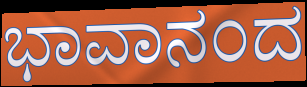
ಭಾವಾನಂದ